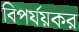
বিপর্যয়কর